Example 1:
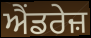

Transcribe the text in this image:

ਐਂਡਰੇਜ਼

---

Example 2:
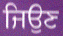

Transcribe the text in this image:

ਜਿਉਣ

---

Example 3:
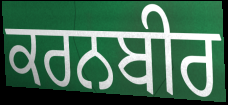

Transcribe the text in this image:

ਕਰਨਬੀਰ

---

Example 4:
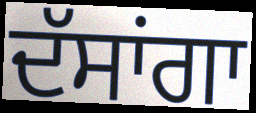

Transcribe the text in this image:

ਦੱਸਾਂਗਾ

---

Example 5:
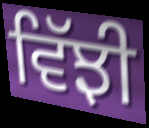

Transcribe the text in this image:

ਵਿੱਝੀ